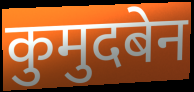
कुमुदबेन